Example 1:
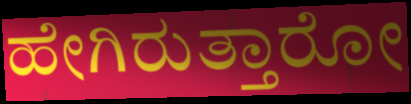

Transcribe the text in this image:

ಹೇಗಿರುತ್ತಾರೋ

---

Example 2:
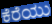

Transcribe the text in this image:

ಕೆರೆಯು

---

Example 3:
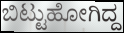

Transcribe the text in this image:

ಬಿಟ್ಟುಹೋಗಿದ್ದ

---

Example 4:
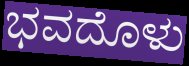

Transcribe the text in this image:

ಭವದೊಳು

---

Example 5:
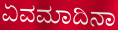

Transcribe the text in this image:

ಏವಮಾದಿನಾ